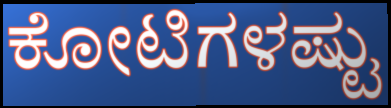
ಕೋಟಿಗಳಷ್ಟು